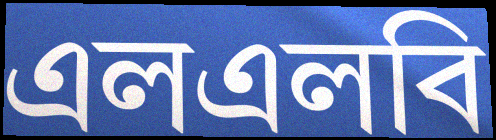
এলএলবি